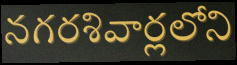
నగరశివార్లలోని